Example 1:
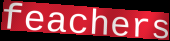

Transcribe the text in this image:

feachers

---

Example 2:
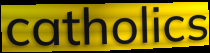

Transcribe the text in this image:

catholics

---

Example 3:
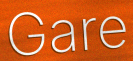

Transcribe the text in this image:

Gare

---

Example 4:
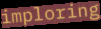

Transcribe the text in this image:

imploring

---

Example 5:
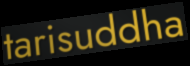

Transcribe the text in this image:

tarisuddha